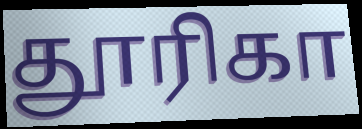
தூரிகா